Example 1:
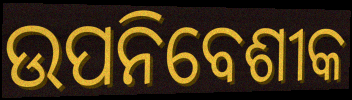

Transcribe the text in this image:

ଉପନିବେଶୀକ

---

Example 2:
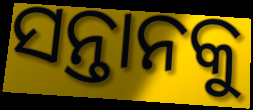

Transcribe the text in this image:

ସନ୍ତାନକୁ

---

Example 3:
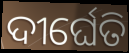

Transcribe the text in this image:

ଦୀର୍ଘେତି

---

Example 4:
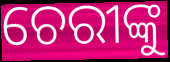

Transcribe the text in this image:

ଚେରୀଙ୍କୁ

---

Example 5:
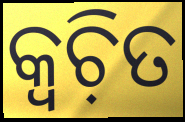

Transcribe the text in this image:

କ୍ୱଚ଼ିତ